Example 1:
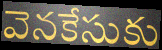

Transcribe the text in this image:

వెనకేసుకు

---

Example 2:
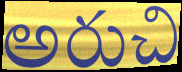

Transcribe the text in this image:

అరుచి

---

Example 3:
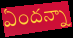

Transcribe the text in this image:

ఏందన్నా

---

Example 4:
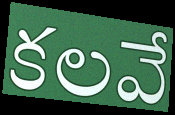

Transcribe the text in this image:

కలవే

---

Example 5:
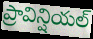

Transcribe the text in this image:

ప్రావిన్షియల్